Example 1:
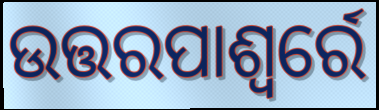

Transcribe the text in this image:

ଉତ୍ତରପାଶ୍ୱର୍ରେ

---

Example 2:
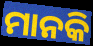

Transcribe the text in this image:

ମାନକି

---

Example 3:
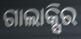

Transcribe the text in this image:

ଗାଲାକ୍ସିର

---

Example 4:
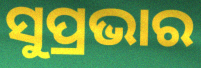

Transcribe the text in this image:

ସୁପ୍ରଭାର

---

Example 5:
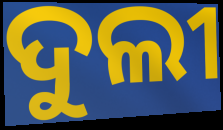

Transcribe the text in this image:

ଦୁଲୀ